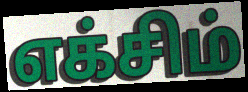
எக்சிம்